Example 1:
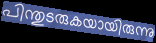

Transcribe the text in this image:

പിന്തുടരുകയായിരുന്നു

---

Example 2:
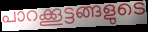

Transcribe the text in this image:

പാറക്കൂട്ടങ്ങളുടെ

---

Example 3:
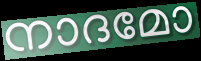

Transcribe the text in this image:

നാദമോ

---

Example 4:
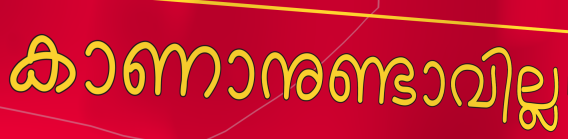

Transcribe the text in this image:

കാണാനുണ്ടാവില്ല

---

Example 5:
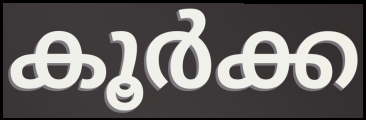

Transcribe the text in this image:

കൂർക്ക